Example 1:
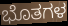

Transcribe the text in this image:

ಭೊತಗಳ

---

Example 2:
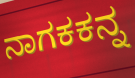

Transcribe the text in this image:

ನಾಗಕಕನ್ನ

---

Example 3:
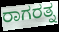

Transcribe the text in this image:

ರಾಗರತ್ನ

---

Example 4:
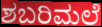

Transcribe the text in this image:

ಶಬರಿಮಲೆ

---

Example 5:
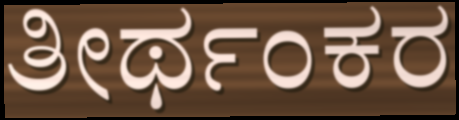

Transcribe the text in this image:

ತೀರ್ಥಂಕರ